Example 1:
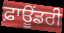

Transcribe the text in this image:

ਫ਼ਾਊਂਡਰੀ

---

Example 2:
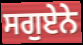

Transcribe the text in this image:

ਸਗੁਏਨੇ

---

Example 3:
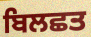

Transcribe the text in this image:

ਬਿਲਛਤ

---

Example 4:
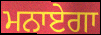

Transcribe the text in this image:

ਮਨਾਏਗਾ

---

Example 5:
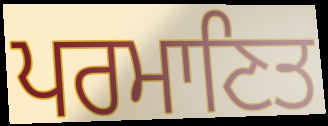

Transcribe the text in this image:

ਪਰਮਾਣਿਤ